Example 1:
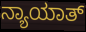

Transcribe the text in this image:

ನ್ಯಾಯಾತ್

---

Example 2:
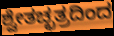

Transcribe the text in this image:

ಶ್ವೇತಚ್ಛತ್ರದಿಂದ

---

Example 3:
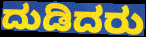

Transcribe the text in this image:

ದುಡಿದರು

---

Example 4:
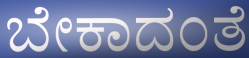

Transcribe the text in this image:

ಬೇಕಾದಂತೆ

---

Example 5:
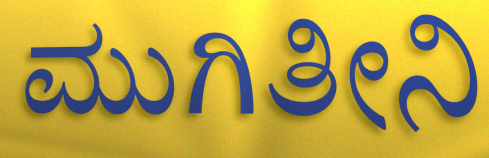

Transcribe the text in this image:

ಮುಗಿತೀನಿ